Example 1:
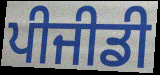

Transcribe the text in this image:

ਪੀਜੀਡੀ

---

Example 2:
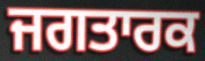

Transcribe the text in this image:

ਜਗਤਾਰਕ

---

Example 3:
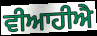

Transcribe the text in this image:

ਵੀਆਹੀਐ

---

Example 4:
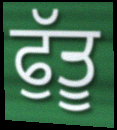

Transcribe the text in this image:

ਫੁੱਤੂ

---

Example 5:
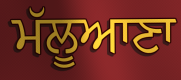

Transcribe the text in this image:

ਮੱਲੂਆਣਾ